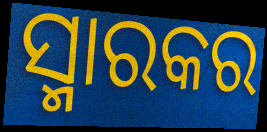
ସ୍ମାରକର